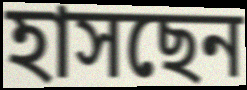
হাসছেন